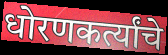
धोरणकर्त्यांचे